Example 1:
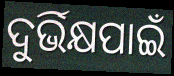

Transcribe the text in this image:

ଦୁର୍ଭିକ୍ଷପାଇଁ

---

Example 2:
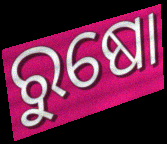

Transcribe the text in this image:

ରୁଷୋ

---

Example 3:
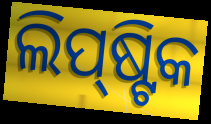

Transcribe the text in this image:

ଲିପ୍‌ଷ୍ଟିକ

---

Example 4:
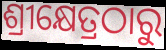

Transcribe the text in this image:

ଶ୍ରୀକ୍ଷେତ୍ରଠାରୁ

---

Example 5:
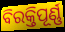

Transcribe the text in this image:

ବିରକ୍ତିପୂର୍ଣ୍ଣ